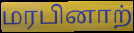
மரபினாற்